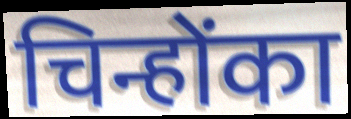
चिन्होंका